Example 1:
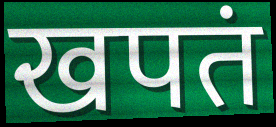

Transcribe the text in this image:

खपतं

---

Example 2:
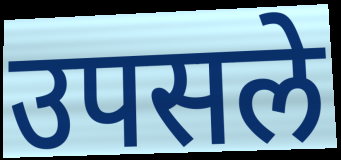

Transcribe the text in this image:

उपसले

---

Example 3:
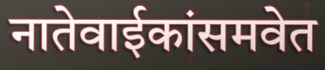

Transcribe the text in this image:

नातेवाईकांसमवेत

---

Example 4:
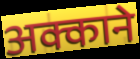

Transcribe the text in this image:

अक्काने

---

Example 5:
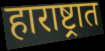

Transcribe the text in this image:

हाराष्ट्रात